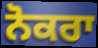
ਨੋਕਰਾ